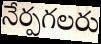
నేర్పగలరు